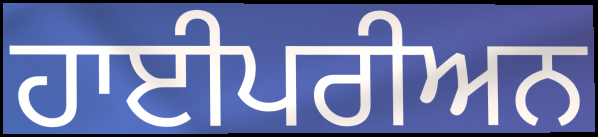
ਹਾਈਪਰੀਅਨ